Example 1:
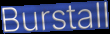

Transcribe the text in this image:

Burstall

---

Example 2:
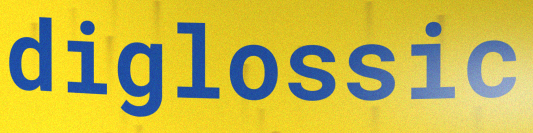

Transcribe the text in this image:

diglossic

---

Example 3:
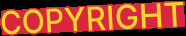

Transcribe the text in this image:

COPYRIGHT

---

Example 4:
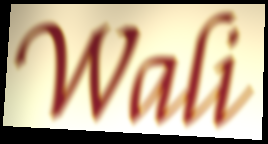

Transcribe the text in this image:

Wali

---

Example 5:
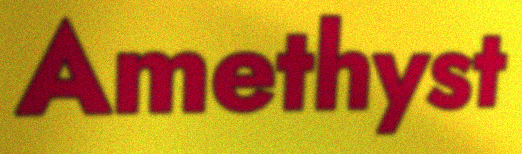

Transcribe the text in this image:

Amethyst